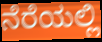
ನೆರೆಯಲ್ಲಿ